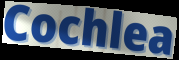
Cochlea